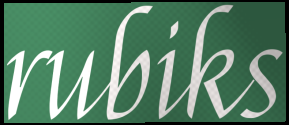
rubiks